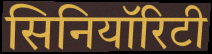
सिनियॉरिटी